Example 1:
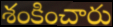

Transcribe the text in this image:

శంకించారు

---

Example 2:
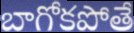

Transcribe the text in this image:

బాగోకపోతే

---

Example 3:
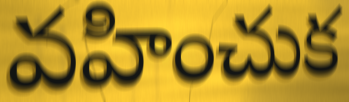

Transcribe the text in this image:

వహించుక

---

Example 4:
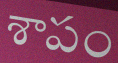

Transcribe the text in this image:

శాపం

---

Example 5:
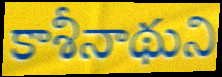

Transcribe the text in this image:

కాశీనాథుని